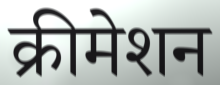
क्रीमेशन